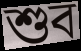
শুব